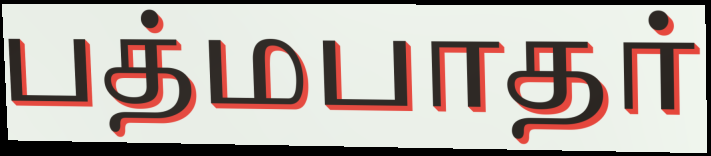
பத்மபாதர்